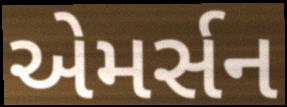
એમર્સન